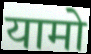
यामो